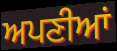
ਅਪਣੀਆਂ